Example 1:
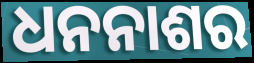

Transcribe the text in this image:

ଧନନାଶର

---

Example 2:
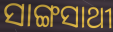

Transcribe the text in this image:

ସାଙ୍ଗସାଥୀ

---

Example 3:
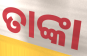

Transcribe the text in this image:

ତାଙ୍କା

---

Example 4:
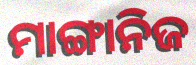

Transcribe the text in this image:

ମାଙ୍ଗାନିଜ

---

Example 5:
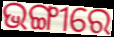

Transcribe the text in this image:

ଭଙ୍ଗୀରେ